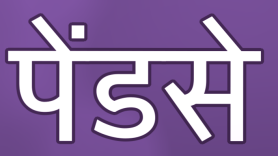
पेंडसे